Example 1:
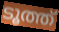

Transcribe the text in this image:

ടൂത്ത്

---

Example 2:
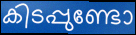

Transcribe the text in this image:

കിടപ്പുണ്ടോ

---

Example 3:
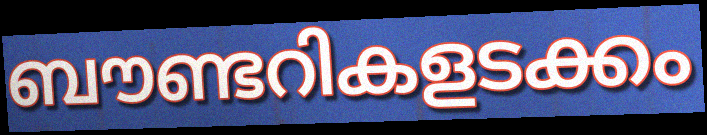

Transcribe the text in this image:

ബൗണ്ടറികളടക്കം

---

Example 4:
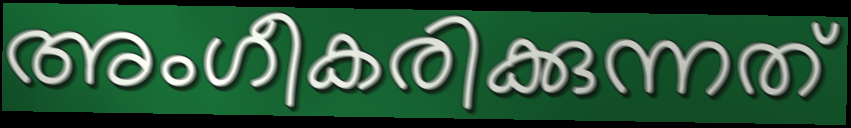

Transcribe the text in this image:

അംഗീകരിക്കുന്നത്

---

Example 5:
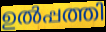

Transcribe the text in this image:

ഉൽപ്പത്തി